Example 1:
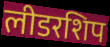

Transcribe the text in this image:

लीडरशिप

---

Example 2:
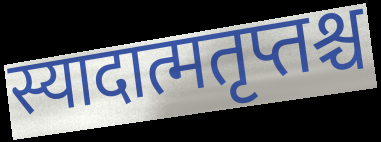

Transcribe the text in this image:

स्यादात्मतृप्तश्च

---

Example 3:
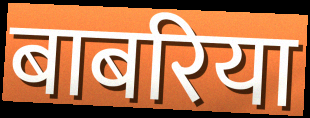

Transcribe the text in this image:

बाबरिया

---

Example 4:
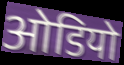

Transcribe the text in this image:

ओडियो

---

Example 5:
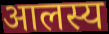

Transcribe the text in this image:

आलस्य